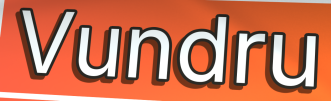
Vundru